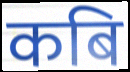
कबि